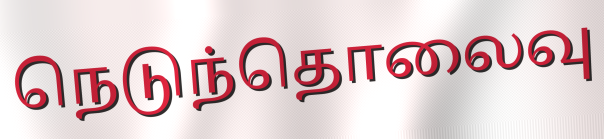
நெடுந்தொலைவு